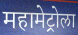
महामेट्रोला